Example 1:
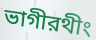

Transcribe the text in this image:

ভাগীরথীং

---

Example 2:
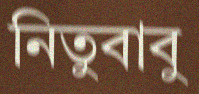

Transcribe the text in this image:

নিতুবাবু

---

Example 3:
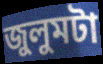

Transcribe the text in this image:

জুলুমটা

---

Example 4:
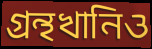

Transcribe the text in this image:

গ্রন্থখানিও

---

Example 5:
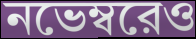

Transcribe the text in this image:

নভেম্বরেও